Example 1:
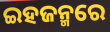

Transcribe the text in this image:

ଇହଜନ୍ମରେ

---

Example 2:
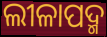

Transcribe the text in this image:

ଲୀଳାପଦ୍ମ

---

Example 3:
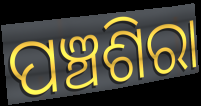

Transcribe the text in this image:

ପଞ୍ଚଶିରା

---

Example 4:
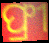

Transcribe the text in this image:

ଫ୍ରୀ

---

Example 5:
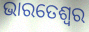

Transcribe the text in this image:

ଭାରତେଶ୍ୱର